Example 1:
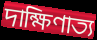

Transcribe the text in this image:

দাক্ষিণাত্য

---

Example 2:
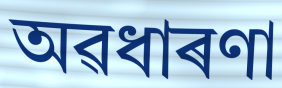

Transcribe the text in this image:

অৱধাৰণা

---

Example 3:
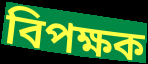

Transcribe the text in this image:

বিপক্ষক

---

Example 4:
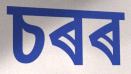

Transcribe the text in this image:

চৰৰ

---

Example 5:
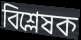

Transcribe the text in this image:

বিশ্লেষক